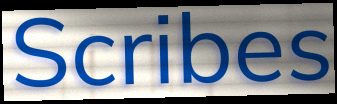
Scribes